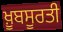
ਖ਼ੂਬਸੂਰਤੀ